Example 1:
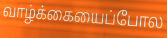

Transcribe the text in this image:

வாழ்க்கையைப்போல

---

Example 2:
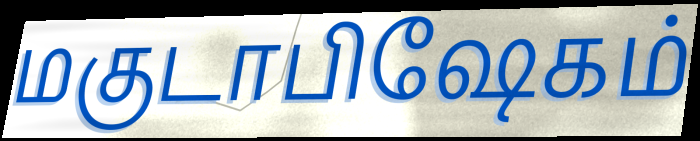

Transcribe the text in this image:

மகுடாபிஷேகம்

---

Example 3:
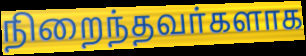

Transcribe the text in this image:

நிறைந்தவர்களாக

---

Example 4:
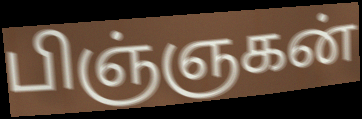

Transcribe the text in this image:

பிஞ்ஞகன்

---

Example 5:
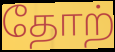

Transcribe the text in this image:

தோற்